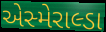
એસ્મેરાલ્ડા